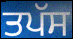
ਤਪੱਸ